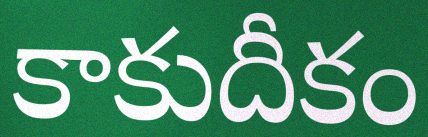
కాకుదీకం